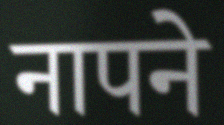
नापने